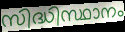
സിദ്ധിസ്ഥാനം